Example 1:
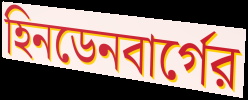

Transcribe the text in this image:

হিনডেনবার্গের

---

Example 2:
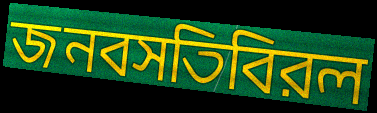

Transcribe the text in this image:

জনবসতিবিরল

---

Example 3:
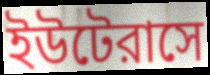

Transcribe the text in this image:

ইউটেরাসে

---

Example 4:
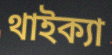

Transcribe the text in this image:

থাইক্যা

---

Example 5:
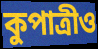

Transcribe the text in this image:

কুপাত্রীও